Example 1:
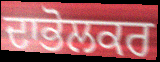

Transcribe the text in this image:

ਦਾਭੋਲਕਰ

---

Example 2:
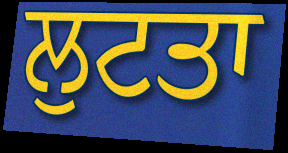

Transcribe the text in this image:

ਲੁਟਤਾ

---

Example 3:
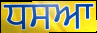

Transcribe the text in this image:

ਧਸਆ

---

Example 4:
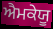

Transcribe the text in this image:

ਐਮਕੇਯੂ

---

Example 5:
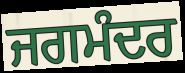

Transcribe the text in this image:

ਜਗਮੰਦਰ